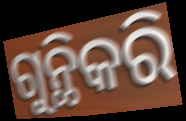
ଗୁନ୍ଥିକରି